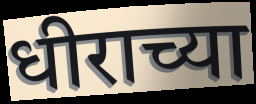
धीराच्या